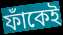
ফাঁকেই